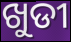
ଖୁଡୀ